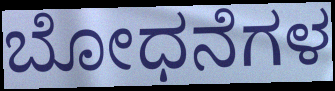
ಬೋಧನೆಗಳ